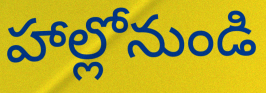
హాల్లోనుండి